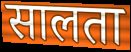
सालता